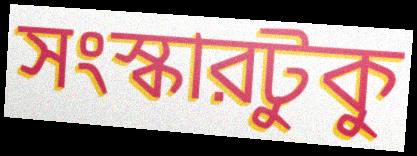
সংস্কারটুকু